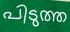
പിടുത്ത